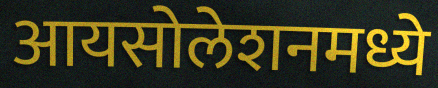
आयसोलेशनमध्ये